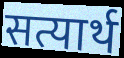
सत्यार्थ